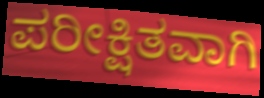
ಪರೀಕ್ಷಿತವಾಗಿ